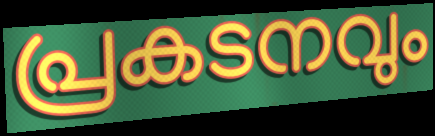
പ്രകടനവും